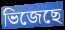
ভিজেছে